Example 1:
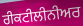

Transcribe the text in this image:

ਰੀਕਟੀਲੀਨੀਅਰ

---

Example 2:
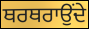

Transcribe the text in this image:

ਥਰਥਰਾਉਂਦੇ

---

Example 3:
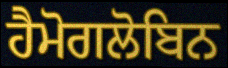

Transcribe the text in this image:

ਹੈਮੋਗਲੋਬਿਨ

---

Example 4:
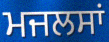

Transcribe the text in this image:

ਮਜਲਸਾਂ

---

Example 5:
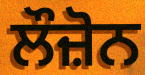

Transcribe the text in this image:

ਲੌਜ਼ੋਨ